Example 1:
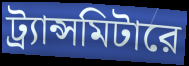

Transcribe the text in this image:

ট্র্যান্সমিটারে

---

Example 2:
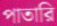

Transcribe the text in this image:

পাতারি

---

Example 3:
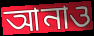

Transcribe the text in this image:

আনাও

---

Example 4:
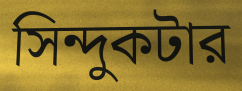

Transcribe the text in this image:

সিন্দুকটার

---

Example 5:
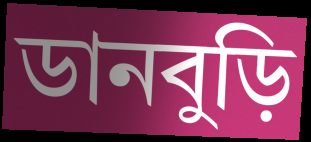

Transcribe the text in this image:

ডানবুড়ি